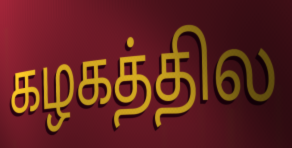
கழகத்தில